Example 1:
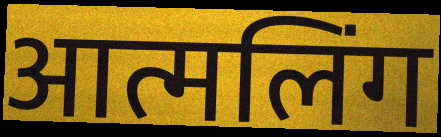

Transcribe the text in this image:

आत्मलिंग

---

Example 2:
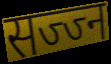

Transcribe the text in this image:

सज्ज्न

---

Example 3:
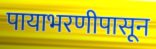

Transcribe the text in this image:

पायाभरणीपासून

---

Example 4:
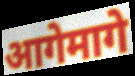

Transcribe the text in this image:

आगेमागे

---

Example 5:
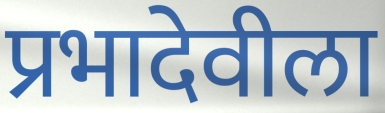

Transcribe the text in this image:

प्रभादेवीला